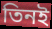
তিনই